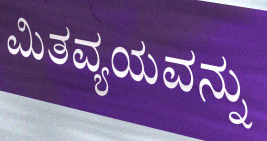
ಮಿತವ್ಯಯವನ್ನು